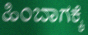
ಹಿಂಬಾಗಕ್ಕೆ